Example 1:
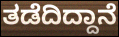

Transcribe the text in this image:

ತಡೆದಿದ್ದಾನೆ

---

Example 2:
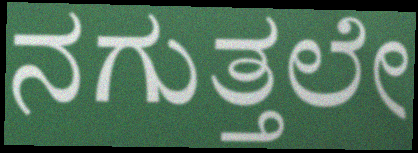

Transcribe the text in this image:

ನಗುತ್ತಲೇ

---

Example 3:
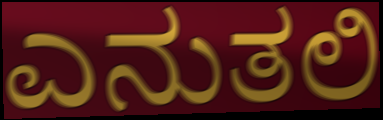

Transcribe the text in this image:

ಎನುತಲಿ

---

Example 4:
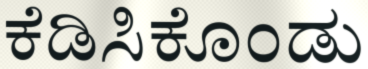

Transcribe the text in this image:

ಕೆಡಿಸಿಕೊಂಡು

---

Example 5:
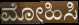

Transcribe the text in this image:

ಮೋಹಿಸಿ